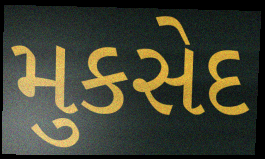
મુકસેદ